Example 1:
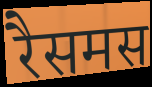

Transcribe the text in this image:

रैसमस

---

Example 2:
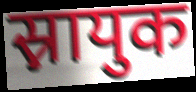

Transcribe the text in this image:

स्नायुक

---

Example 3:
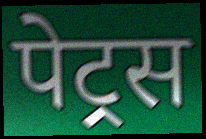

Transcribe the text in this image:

पेट्रस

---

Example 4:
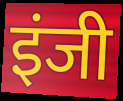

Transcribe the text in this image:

इंजी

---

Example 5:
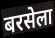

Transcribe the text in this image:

बरसेला